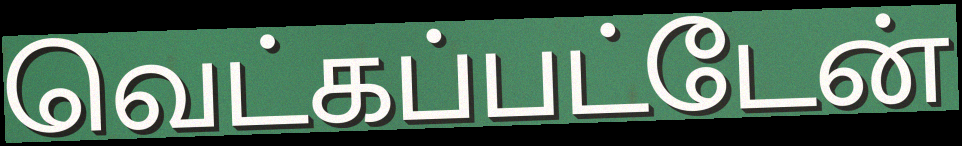
வெட்கப்பட்டேன்